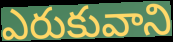
ఎరుకువాని